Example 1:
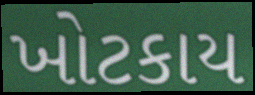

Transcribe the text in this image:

ખોટકાય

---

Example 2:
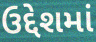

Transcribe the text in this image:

ઉદ્દેશમાં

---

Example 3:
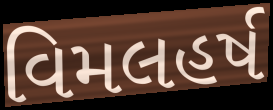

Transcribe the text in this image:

વિમલહર્ષ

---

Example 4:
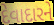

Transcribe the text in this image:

દેવાદારને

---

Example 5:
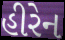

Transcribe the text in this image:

હીરેન